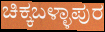
ಚಿಕ್ಕಬಳ್ಳಾಪುರ